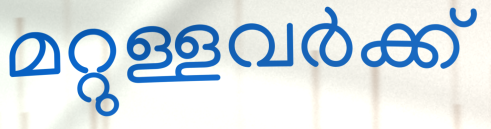
മറ്റുള്ളവർക്ക്